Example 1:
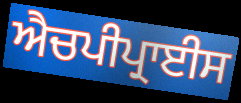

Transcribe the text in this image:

ਐਚਪੀਪ੍ਰਾਈਸ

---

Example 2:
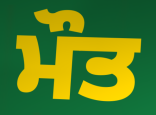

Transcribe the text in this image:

ਮੌਤ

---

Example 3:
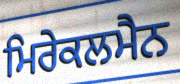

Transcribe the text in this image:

ਮਿਰੇਕਲਮੈਨ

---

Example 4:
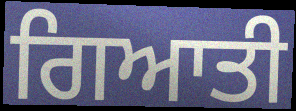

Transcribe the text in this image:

ਗਿਆਤੀ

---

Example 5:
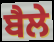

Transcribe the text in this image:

ਬੈਲੇ